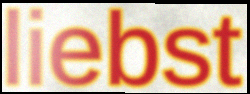
liebst